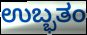
ಉಬ್ಭತಂ